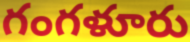
గంగళూరు